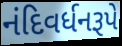
નંદિવર્ધનરૂપે